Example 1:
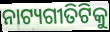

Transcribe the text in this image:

ନାଟ୍ୟଗୀତିଟିକୁ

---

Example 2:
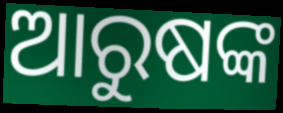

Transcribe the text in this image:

ଆରୁଷଙ୍କ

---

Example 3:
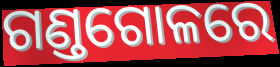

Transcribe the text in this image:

ଗଣ୍ଡଗୋଳରେ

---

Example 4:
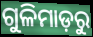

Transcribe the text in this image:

ଗୁଳିମାଡ଼ରୁ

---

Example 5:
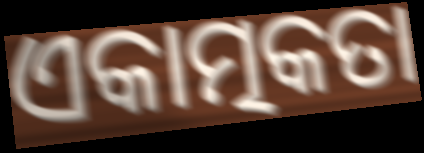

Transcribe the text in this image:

ଏକାତ୍ମକତା